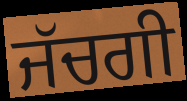
ਜੱਚਗੀ